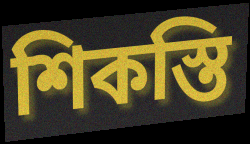
শিকস্তি